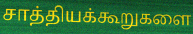
சாத்தியக்கூறுகளை